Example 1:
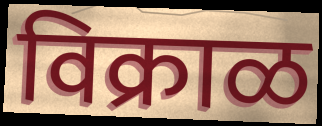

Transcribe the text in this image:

विक्राळ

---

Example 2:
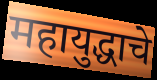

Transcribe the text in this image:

महायुद्धाचे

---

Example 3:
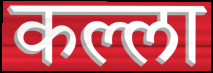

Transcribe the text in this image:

कल्ला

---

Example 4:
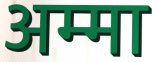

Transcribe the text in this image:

अम्मा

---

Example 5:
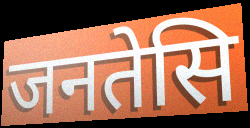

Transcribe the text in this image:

जनतेसि